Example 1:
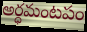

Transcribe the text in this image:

అర్ధమంటపం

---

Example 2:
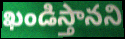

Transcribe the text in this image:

ఖండిస్తానని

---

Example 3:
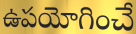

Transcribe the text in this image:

ఉపయోగించే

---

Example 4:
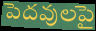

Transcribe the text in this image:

పెదవులపై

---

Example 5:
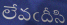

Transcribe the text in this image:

లేవఁదీసి